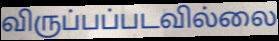
விருப்பப்படவில்லை